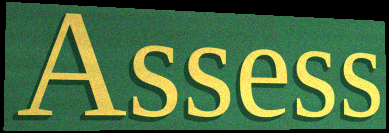
Assess